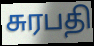
சுரபதி